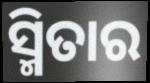
ସ୍ମିତାର